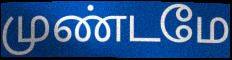
முண்டமே